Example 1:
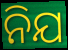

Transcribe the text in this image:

ନିଯ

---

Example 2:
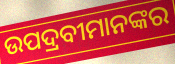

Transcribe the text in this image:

ଉପଦ୍ରବୀମାନଙ୍କର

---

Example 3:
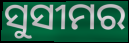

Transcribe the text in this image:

ସୁସୀମର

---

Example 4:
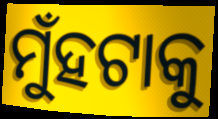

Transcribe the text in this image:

ମୁଁହଟାକୁ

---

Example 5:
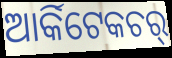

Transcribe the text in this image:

ଆର୍କିଟେକଚର୍